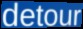
detour